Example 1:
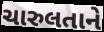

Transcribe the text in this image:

ચારુલતાને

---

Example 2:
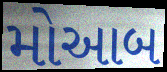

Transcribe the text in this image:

મોઆબ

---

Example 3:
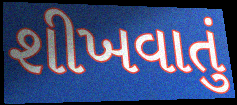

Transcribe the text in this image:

શીખવાતું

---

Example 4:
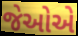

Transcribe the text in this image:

જેઓએ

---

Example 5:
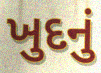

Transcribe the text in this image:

ખુદનું